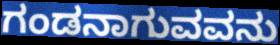
ಗಂಡನಾಗುವವನು